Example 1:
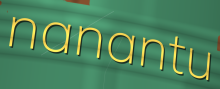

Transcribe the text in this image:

nanantu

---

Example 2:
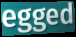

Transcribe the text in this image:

egged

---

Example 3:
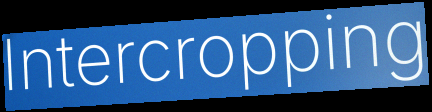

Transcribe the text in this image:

Intercropping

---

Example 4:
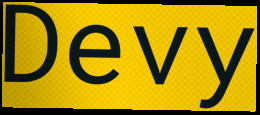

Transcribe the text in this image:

Devy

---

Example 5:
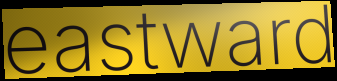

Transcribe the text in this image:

eastward